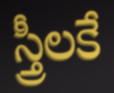
స్త్రీలకే